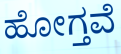
ಹೋಗ್ತವೆ